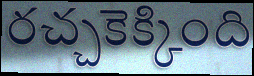
రచ్చకెక్కింది